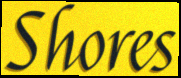
Shores